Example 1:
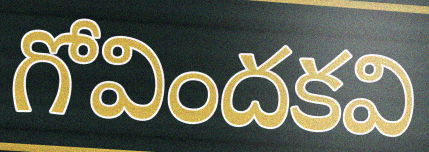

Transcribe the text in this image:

గోవిందకవి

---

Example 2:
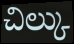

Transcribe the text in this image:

చిల్కు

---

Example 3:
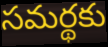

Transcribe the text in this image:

సమర్థకు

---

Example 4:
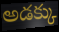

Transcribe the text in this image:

అడక్కు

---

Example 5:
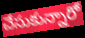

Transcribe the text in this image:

చేసుకున్నారో